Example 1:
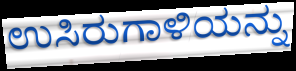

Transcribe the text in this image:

ಉಸಿರುಗಾಳಿಯನ್ನು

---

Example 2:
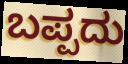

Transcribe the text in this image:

ಬಪ್ಪದು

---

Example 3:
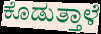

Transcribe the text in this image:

ಕೊಡುತ್ತಾಳೆ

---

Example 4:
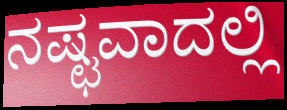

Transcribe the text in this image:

ನಷ್ಟವಾದಲ್ಲಿ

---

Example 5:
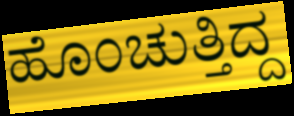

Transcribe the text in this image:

ಹೊಂಚುತ್ತಿದ್ದ